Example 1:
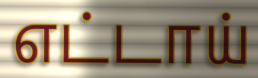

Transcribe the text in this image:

எட்டாய்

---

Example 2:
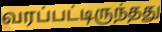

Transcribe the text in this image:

வரப்பட்டிருந்தது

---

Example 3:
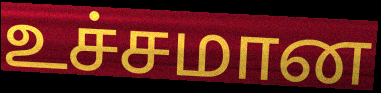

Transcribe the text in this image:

உச்சமான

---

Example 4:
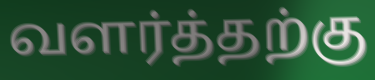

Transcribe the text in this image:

வளர்த்தற்கு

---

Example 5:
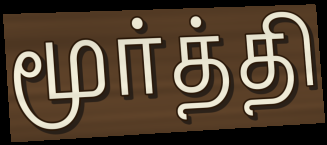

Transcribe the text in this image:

மூர்த்தி